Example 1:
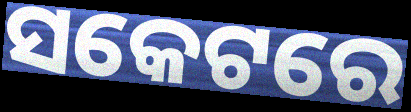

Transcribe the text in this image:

ସକେଟରେ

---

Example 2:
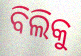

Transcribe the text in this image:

ବିଲିକୁ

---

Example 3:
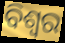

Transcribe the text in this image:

ବିଶ୍ଵର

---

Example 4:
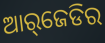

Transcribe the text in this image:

ଆର୍‌ଜେଡିର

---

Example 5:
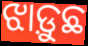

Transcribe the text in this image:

ଝାଡ଼ୁଛ